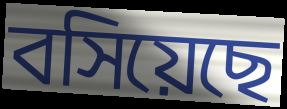
বসিয়েছে